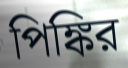
পিঙ্কির